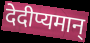
देदीप्यमान्